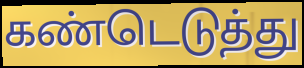
கண்டெடுத்து